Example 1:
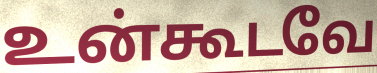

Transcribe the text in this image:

உன்கூடவே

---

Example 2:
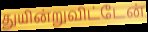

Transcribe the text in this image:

துயின்றுவிட்டேன்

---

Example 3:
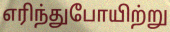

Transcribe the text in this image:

எரிந்துபோயிற்று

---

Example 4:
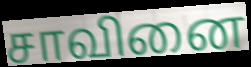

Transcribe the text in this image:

சாவினை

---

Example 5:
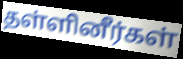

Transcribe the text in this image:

தள்ளினீர்கள்